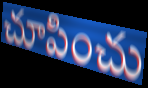
చూపించు